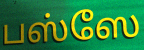
பஸ்ஸே